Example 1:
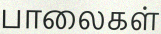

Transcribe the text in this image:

பாலைகள்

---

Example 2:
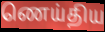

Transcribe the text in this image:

ணெய்திய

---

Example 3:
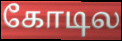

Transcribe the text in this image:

கோடில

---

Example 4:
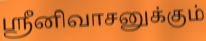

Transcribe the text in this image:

ஸ்ரீனிவாசனுக்கும்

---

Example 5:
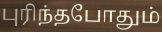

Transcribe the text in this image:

புரிந்தபோதும்